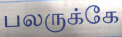
பலருக்கே